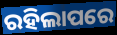
ରହିଲାପରେ